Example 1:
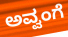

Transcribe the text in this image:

ಅವ್ವಂಗೆ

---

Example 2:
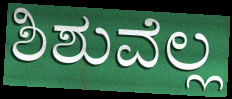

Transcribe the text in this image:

ಶಿಶುವೆಲ್ಲ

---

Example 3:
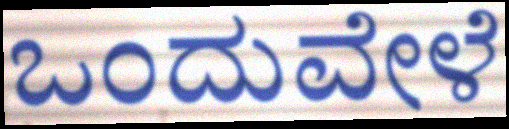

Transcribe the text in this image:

ಒಂದುವೇಳೆ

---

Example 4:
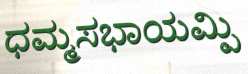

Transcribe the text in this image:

ಧಮ್ಮಸಭಾಯಮ್ಪಿ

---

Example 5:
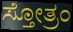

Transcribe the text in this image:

ಸ್ತೋತ್ರಂ